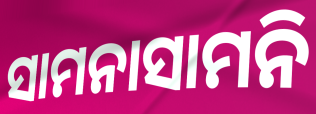
ସାମନାସାମନି